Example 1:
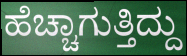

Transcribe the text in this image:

ಹೆಚ್ಚಾಗುತ್ತಿದ್ದು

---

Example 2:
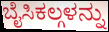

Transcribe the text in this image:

ಬೈಸಿಕಲ್ಗಳನ್ನು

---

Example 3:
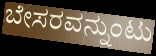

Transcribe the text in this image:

ಬೇಸರವನ್ನುಂಟು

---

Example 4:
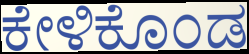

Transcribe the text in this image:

ಕೇಳಿಕೊಂಡ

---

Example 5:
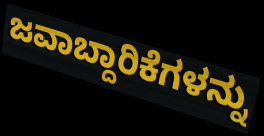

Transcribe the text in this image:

ಜವಾಬ್ದಾರಿಕೆಗಳನ್ನು